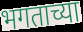
भगताच्या